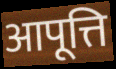
आपूत्ति